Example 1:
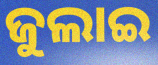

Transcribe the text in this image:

ଜୁଲାଇ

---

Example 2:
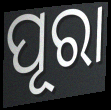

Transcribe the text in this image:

ପୂରା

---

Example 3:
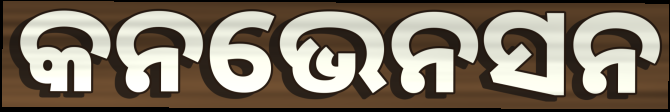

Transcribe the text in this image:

କନଭେନସନ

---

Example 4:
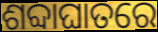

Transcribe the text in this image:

ଶବ୍ଦାଘାତରେ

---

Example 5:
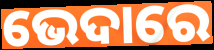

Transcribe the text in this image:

ଭେଦାରେ